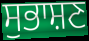
ਸੁਭਾਸ਼ਣ